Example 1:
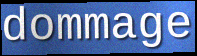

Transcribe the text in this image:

dommage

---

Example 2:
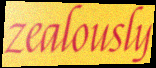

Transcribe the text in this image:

zealously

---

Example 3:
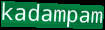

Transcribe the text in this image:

kadampam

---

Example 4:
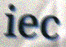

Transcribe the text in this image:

iec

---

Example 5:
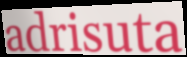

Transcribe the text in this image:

adrisuta